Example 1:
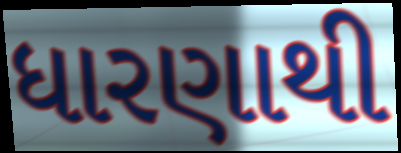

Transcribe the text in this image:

ધારણાથી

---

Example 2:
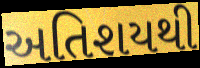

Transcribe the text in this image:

અતિશયથી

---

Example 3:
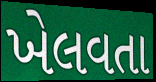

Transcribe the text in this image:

ખેલવતા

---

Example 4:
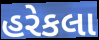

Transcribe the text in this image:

હરેકલા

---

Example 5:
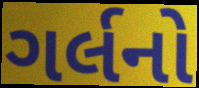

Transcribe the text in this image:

ગર્લનો